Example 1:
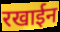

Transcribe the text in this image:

रखाईन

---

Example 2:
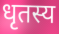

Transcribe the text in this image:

धृतस्य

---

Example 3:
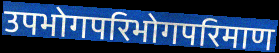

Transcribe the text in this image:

उपभोगपरिभोगपरिमाण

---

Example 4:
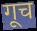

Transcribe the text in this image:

गूच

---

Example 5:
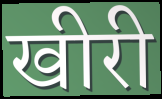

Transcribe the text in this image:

खीरी